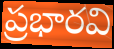
ప్రభారవి